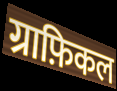
ग्राफ़िकल